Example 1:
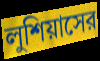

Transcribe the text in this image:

লুশিয়াসের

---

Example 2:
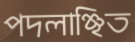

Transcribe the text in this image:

পদলাঞ্ছিত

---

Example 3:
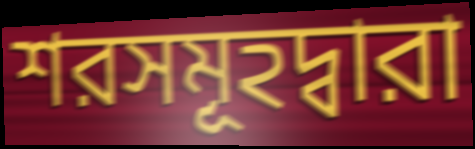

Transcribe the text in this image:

শরসমূহদ্বারা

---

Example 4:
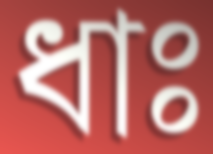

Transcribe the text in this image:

ধাঃ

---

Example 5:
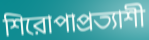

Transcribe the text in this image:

শিরোপাপ্রত্যাশী